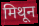
मिथून